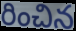
రించిన